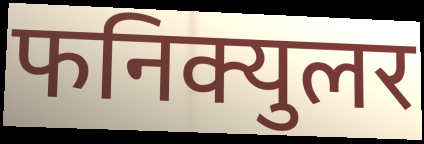
फनिक्युलर